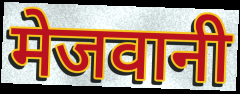
मेजवानी